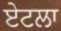
ਏਟਲਾ